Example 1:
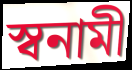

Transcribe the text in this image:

স্বনামী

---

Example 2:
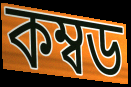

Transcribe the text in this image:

কম্বড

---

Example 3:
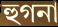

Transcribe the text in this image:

হুগনা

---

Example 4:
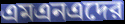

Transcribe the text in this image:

এমএনএদের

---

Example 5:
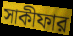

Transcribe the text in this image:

সাকীফার